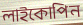
লাইকোপিন